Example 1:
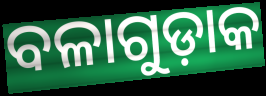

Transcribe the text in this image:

ବଳାଗୁଡ଼ାକ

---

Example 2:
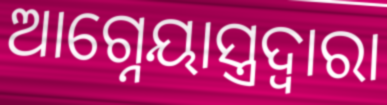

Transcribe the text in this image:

ଆଗ୍ନେୟାସ୍ତ୍ରଦ୍ୱାରା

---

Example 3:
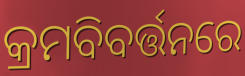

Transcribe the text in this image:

କ୍ରମବିବର୍ତ୍ତନରେ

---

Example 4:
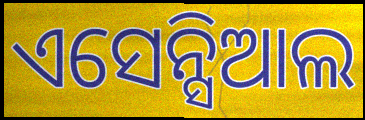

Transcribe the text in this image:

ଏସେନ୍ସିଆଲ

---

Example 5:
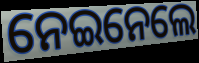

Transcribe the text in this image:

ନେଇନେଲେ